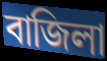
বাজিলা